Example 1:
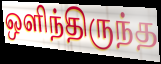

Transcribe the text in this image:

ஒளிந்திருந்த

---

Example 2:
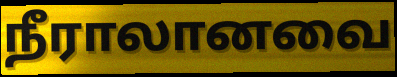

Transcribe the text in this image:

நீராலானவை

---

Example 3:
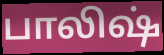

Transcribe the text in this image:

பாலிஷ்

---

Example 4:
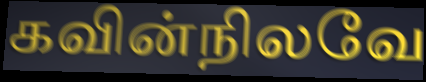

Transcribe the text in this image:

கவின்நிலவே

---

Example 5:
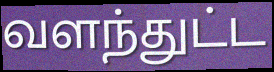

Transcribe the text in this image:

வளந்துட்ட